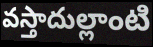
వస్తాదుల్లాంటి